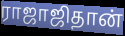
ராஜாஜிதான்